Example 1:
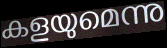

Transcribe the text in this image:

കളയുമെന്നു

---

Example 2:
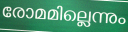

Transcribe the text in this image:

രോമമില്ലെന്നും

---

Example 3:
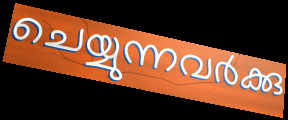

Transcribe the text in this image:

ചെയ്യുന്നവർക്കു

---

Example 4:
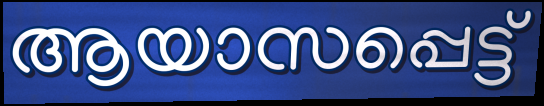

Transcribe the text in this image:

ആയാസപ്പെട്ട്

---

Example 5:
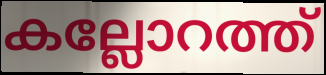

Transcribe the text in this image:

കല്ലോറത്ത്